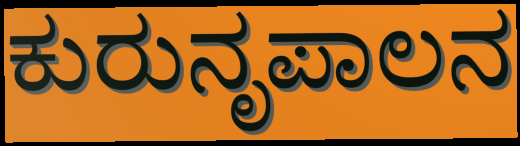
ಕುರುನೃಪಾಲನ